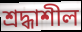
শ্ৰদ্ধাশীল